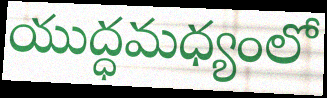
యుద్ధమధ్యంలో